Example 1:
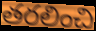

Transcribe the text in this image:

తరలించి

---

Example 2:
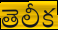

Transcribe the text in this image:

తెలీక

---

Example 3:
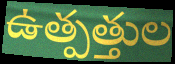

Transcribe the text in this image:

ఉత్పత్తుల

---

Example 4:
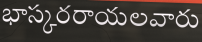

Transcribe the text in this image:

భాస్కరరాయలవారు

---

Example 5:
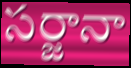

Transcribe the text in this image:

సర్జానా